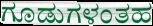
ಗೂಡುಗಳಂತಹ